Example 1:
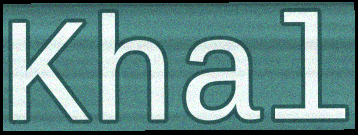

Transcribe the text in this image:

Khal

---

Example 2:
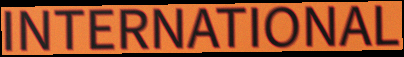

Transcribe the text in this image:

INTERNATIONAL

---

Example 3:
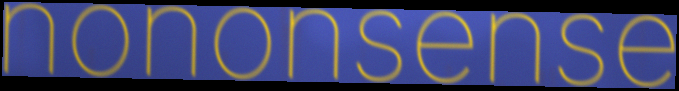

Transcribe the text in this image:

nononsense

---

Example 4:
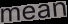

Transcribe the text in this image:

mean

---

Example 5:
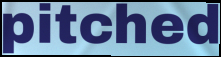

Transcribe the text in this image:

pitched